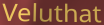
Veluthat